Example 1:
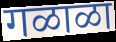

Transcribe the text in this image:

गळाळा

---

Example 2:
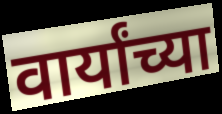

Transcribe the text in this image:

वार्यांच्या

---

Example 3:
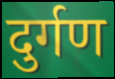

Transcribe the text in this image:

दुर्गण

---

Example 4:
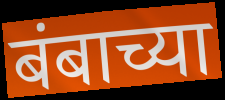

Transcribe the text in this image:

बंबाच्या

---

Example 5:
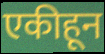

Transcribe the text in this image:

एकीहून